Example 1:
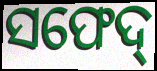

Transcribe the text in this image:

ସଫେଦ୍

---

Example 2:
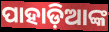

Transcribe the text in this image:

ପାହାଡ଼ିଆଙ୍କ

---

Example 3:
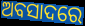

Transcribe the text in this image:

ଅବସାଦରେ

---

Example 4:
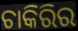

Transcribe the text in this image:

ଚାକିରିର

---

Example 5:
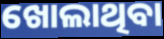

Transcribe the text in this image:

ଖୋଲାଥିବା